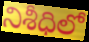
నిశీధిలో